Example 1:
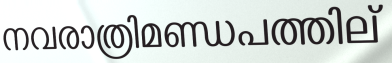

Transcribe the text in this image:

നവരാത്രിമണ്ഡപത്തില്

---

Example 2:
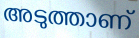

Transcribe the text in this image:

അടുത്താണ്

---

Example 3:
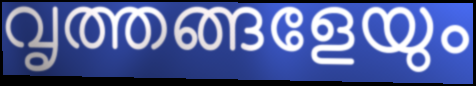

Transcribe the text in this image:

വൃത്തങ്ങളേയും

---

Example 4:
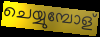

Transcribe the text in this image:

ചെയ്യുമ്പോള്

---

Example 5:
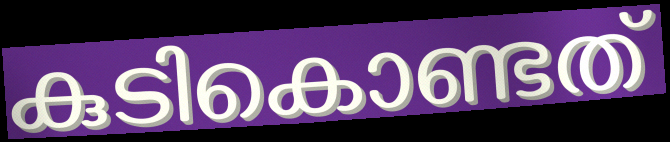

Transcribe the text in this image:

കുടികൊണ്ടത്